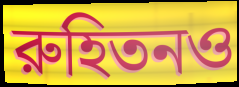
রুহিতনও